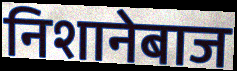
निशानेबाज